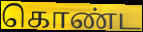
கொண்ட